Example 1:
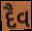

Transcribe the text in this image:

દૈવ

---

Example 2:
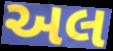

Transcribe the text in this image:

અલ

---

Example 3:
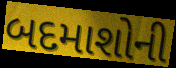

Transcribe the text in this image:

બદમાશોની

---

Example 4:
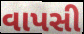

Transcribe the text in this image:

વાપસી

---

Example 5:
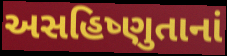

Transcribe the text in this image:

અસહિષ્ણુતાનાં